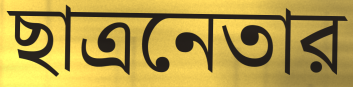
ছাত্রনেতার